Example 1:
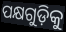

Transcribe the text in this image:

ପକ୍ଷଗୁଡ଼ିକୁ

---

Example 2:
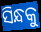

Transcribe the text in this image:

ସିନ୍ଧକୁ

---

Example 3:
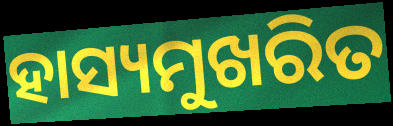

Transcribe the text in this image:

ହାସ୍ୟମୁଖରିତ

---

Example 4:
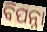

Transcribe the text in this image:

ବିପନ୍ନା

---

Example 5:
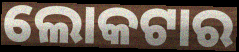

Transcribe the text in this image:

ଲୋକଟାର